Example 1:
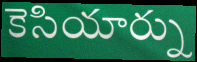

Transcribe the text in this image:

కెసియార్ను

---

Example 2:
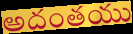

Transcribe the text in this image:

అదంతయు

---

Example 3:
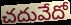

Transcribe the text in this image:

చదువేదో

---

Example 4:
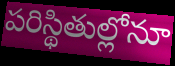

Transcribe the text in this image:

పరిస్థితుల్లోనూ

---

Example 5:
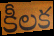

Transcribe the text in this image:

కీలక